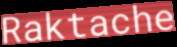
Raktache